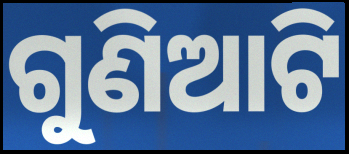
ଗୁଣିଆଟି